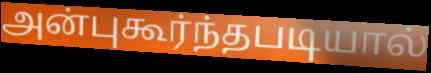
அன்புகூர்ந்தபடியால்